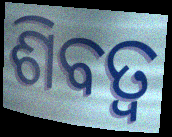
ଶିବତ୍ୱ